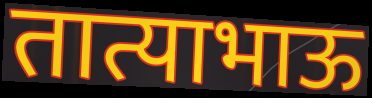
तात्याभाऊ